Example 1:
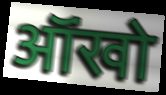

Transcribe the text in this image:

ऑंखो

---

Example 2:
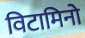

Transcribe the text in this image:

विटामिनो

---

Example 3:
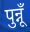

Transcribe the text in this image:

पुन्नूँ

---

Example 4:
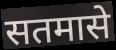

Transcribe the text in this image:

सतमासे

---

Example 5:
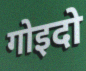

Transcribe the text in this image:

गोइदो